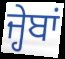
ਜ੍ਹੇਬਾਂ